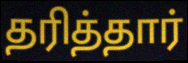
தரித்தார்